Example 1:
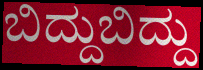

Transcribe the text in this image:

ಬಿದ್ದುಬಿದ್ದು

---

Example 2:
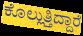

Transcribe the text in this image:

ಕೊಲ್ಲುತ್ತಿದ್ದಾರೆ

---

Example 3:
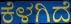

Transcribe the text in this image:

ಕೆಳಗಿದೆ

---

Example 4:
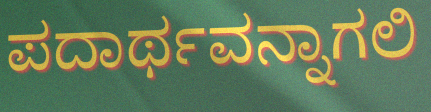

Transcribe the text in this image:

ಪದಾರ್ಥವನ್ನಾಗಲಿ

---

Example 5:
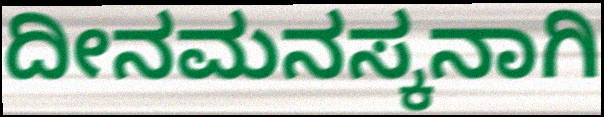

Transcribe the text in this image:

ದೀನಮನಸ್ಕನಾಗಿ